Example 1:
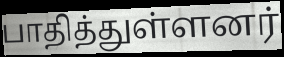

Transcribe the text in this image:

பாதித்துள்ளனர்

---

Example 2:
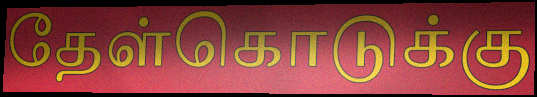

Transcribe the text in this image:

தேள்கொடுக்கு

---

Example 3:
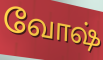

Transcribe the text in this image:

வோஷ்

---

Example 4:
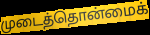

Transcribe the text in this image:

முடைத்தொன்மைக்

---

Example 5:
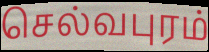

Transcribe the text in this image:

செல்வபுரம்